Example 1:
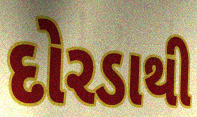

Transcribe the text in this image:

દોરડાથી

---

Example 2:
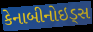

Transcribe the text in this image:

કેનાબીનોઇડ્સ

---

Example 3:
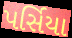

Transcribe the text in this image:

પર્સિયા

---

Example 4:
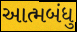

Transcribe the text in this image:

આત્મબંધુ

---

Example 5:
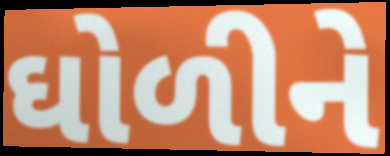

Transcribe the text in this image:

ઘોળીને